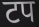
टप